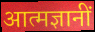
आत्मज्ञानीं